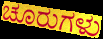
ಚೂರುಗಳು